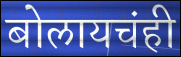
बोलायचंही